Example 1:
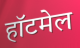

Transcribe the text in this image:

हॉटमेल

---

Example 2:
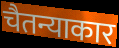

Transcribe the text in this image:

चैतन्याकार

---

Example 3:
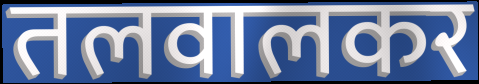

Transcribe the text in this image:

तलवालकर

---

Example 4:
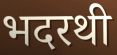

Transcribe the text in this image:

भदरथी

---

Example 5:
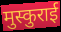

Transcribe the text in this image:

मुस्कुराई